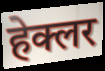
हेक्लर